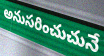
అనుసరించుచునే